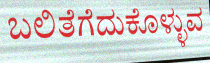
ಬಲಿತೆಗೆದುಕೊಳ್ಳುವ